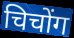
चिचोंग